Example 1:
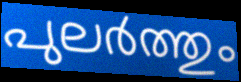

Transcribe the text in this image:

പുലർത്തും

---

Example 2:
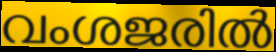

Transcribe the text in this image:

വംശജരിൽ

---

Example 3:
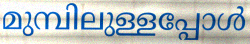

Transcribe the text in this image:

മുമ്പിലുള്ളപ്പോൾ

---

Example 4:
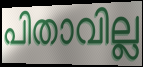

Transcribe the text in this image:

പിതാവില്ല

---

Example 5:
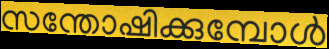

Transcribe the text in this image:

സന്തോഷിക്കുമ്പോൾ